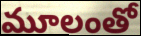
మూలంతో